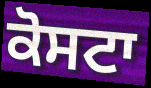
ਕੋਸਟਾ